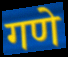
गणे